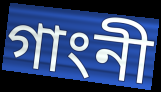
গাংনী